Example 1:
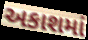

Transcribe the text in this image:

અકાશમાં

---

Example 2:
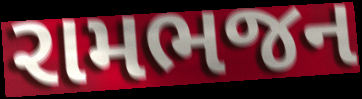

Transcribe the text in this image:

રામભજન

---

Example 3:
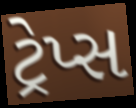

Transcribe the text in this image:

ટ્રેપ્સ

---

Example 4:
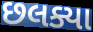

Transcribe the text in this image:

છલક્યા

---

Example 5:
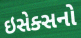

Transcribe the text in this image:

ઇસેક્સનો